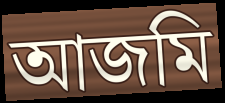
আজমি